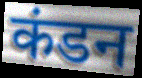
कंडन